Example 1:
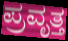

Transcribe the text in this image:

ಪ್ರವೃತ್ತ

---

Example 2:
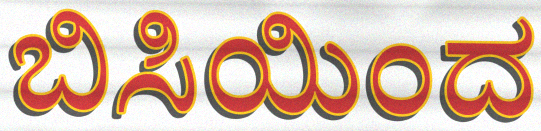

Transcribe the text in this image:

ಬಿಸಿಯಿಂದ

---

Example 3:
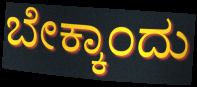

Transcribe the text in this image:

ಬೇಕ್ಕಾಂದು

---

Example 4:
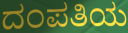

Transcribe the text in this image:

ದಂಪತಿಯ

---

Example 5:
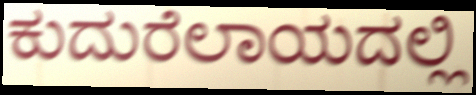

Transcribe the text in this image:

ಕುದುರೆಲಾಯದಲ್ಲಿ